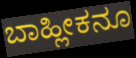
ಬಾಹ್ಲೀಕನೂ